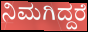
ನಿಮಗಿದ್ದರೆ